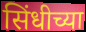
सिंधीच्या